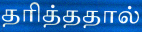
தரித்ததால்